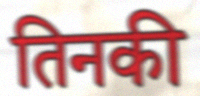
तिनकी